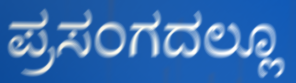
ಪ್ರಸಂಗದಲ್ಲೂ